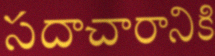
సదాచారానికి